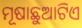
ମୂଷାଛୁଆଟିଏ